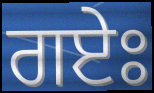
ਗਏਃ